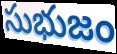
సుభుజం